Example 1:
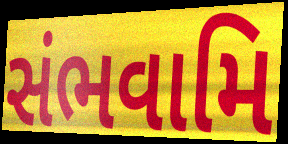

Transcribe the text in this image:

સંભવામિ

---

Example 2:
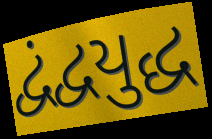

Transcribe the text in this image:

દ્વંદ્વયુદ્ધ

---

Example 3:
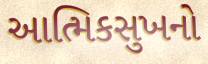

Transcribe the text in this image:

આત્મિકસુખનો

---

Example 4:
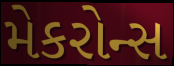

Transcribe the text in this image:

મેકરોન્સ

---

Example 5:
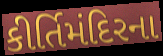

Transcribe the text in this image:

કીર્તિમંદિરના